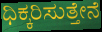
ಧಿಕ್ಕರಿಸುತ್ತೇನೆ